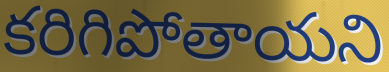
కరిగిపోతాయని